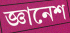
জ্ঞানেশ